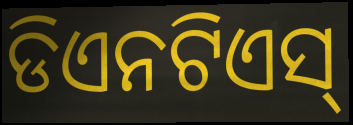
ଡିଏନଟିଏସ୍